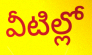
వీటిల్లో